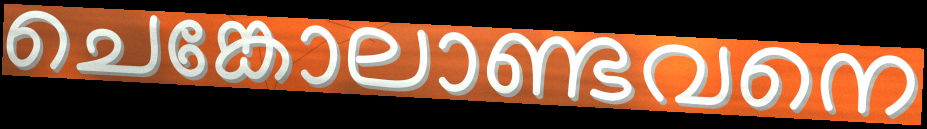
ചെങ്കോലാണ്ടവനെ